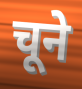
चूने